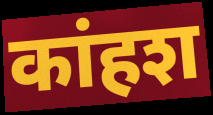
कांहश